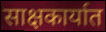
साक्षकार्यात